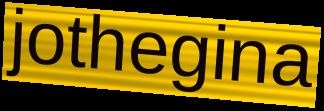
jothegina